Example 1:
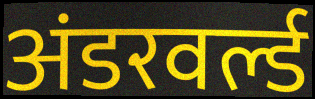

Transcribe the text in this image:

अंडरवर्ल्ड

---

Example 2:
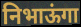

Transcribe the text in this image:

निभाऊंगा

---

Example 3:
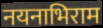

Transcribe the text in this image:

नयनाभिराम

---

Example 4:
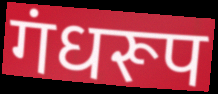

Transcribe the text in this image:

गंधरूप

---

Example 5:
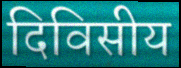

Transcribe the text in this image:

दिविसीय